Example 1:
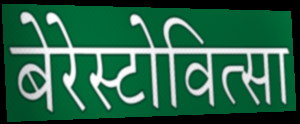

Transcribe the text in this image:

बेरेस्टोवित्सा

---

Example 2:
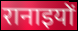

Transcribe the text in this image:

रानाइयों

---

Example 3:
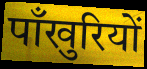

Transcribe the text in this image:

पाँखुरियों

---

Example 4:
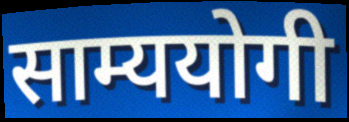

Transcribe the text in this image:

साम्ययोगी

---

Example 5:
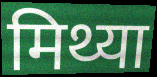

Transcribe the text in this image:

मिथ्या